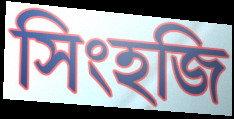
সিংহজি